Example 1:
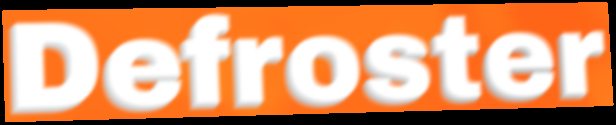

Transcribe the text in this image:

Defroster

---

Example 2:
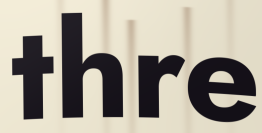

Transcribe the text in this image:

thre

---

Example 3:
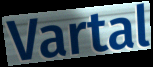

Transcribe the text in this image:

Vartal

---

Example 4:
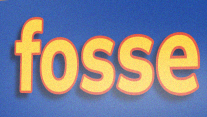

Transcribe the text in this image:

fosse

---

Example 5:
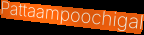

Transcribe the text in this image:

Pattaampoochigal